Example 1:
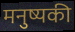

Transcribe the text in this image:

मनुष्यकी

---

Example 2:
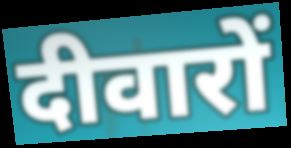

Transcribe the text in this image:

दीवारों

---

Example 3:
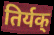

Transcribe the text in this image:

तिर्यक्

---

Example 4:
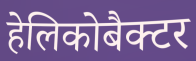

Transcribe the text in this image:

हेलिकोबैक्टर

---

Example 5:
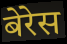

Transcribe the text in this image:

बेरेस